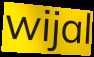
wijal